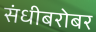
संधीबरोबर